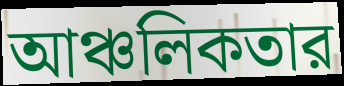
আঞ্চলিকতার